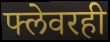
फ्लेवरही